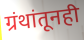
ग्रंथांतूनही